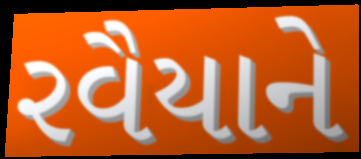
રવૈયાને